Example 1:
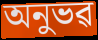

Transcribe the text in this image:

অনুভৱ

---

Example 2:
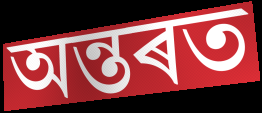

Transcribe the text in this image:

অন্তৰত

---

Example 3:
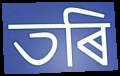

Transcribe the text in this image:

তৰি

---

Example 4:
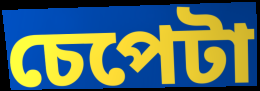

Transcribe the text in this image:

চেপেটা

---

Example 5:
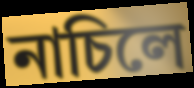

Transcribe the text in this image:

নাচিলে